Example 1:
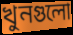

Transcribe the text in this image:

খুনগুলো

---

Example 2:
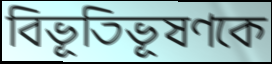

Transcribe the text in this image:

বিভূতিভূষণকে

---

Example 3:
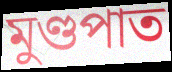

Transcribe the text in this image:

মুণ্ডপাত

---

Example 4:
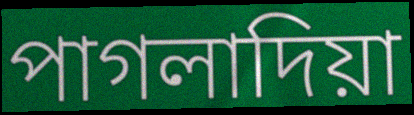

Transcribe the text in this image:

পাগলাদিয়া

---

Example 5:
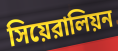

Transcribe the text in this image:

সিয়েরালিয়ন